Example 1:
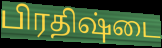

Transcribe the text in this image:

பிரதிஷ்டை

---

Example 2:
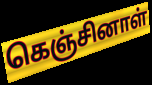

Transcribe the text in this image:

கெஞ்சினாள்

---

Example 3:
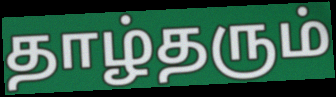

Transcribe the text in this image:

தாழ்தரும்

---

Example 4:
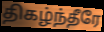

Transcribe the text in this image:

திகழ்ந்தீரே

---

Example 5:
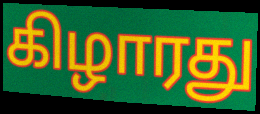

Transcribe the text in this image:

கிழாரது